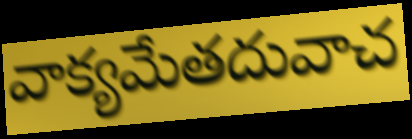
వాక్యమేతదువాచ